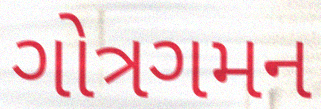
ગોત્રગમન